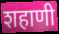
शहाणी